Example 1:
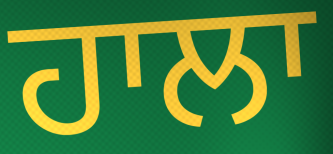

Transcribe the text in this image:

ਹਾਲਾ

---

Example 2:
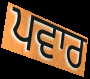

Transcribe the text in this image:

ਪਵਾਰ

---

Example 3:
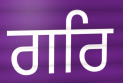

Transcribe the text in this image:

ਗਰਿ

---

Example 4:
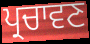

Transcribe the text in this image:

ਪ੍ਰਚਾਵਣ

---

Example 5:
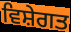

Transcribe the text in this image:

ਵਿਸ਼ੇਗਤ